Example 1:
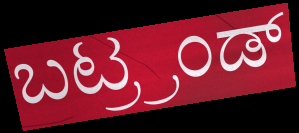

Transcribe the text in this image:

ಬಟ್ರ್ರಂಡ್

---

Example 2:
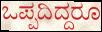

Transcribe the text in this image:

ಒಪ್ಪದಿದ್ದರೂ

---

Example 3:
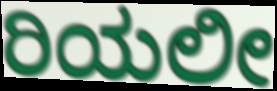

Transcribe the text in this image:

ರಿಯಲೀ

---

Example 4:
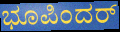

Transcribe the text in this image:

ಭೂಪಿಂದರ್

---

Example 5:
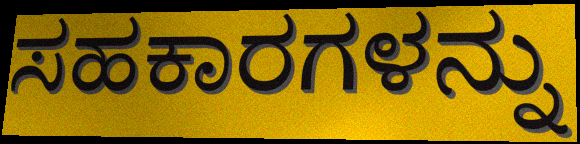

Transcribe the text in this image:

ಸಹಕಾರಗಳನ್ನು